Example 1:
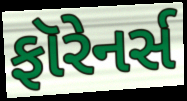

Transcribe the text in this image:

ફૉરેનર્સ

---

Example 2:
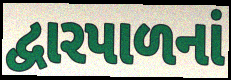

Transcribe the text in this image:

દ્વારપાળનાં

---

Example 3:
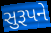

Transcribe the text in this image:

સુરૂપને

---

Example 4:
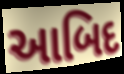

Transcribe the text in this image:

આબિદ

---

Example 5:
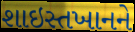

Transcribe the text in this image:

શાઇસ્તખાનને